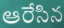
ఆరేసిన